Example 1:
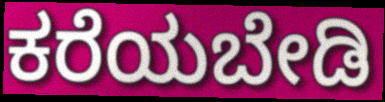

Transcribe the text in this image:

ಕರೆಯಬೇಡಿ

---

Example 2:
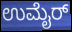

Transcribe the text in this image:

ಉಮೈರ್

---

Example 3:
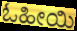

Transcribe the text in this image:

ಓಹೀಯಿ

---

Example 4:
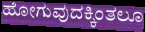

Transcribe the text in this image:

ಹೋಗುವುದಕ್ಕಿಂತಲೂ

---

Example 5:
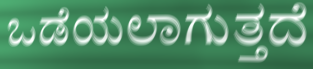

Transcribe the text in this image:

ಒಡೆಯಲಾಗುತ್ತದೆ